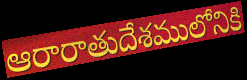
ఆరారాతుదేశములోనికి